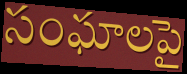
సంఘాలపై